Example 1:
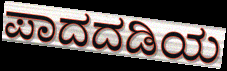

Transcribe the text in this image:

ಪಾದದಡಿಯ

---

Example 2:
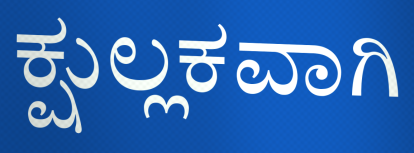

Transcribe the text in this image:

ಕ್ಷುಲ್ಲಕವಾಗಿ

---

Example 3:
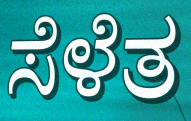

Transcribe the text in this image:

ಸೆಳೆತ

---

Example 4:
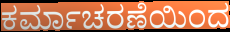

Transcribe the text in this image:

ಕರ್ಮಾಚರಣೆಯಿಂದ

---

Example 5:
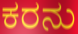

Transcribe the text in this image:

ಕರನು